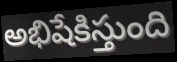
అభిషేకిస్తుంది